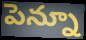
పెన్నూ